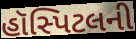
હૉસ્પિટલની